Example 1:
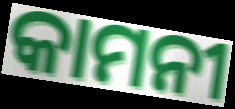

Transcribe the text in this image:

କାମନୀ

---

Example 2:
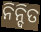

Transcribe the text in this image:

ନିନ୍ଦିତ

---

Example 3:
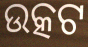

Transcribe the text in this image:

ଉତ୍କଟ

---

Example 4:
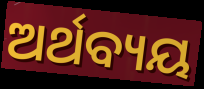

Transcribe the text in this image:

ଅର୍ଥବ୍ୟୟ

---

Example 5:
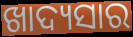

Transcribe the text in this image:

ଖାଦ୍ୟସାର